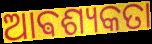
ଆଵଶ୍ୟକତା